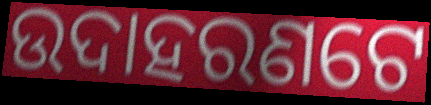
ଉଦାହରଣଟେ